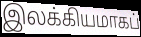
இலக்கியமாகப்